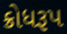
ક્રોધરૂપ